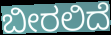
ಬೀರಲಿದೆ